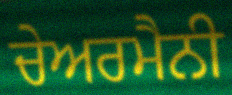
ਚੇਅਰਮੈਨੀ